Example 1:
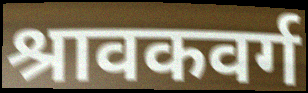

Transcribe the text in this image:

श्रावकवर्ग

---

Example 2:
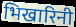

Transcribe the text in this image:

भिखारिनी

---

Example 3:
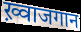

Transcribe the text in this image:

ख़्वाजगान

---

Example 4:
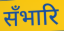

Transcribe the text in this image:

सँभारि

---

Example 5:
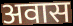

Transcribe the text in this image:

अवास